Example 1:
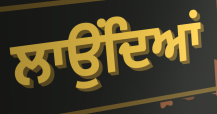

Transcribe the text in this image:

ਲਾਉਂਦਿਆਂ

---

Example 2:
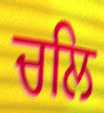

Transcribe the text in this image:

ਚਲਿ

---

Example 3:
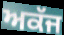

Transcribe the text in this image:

ਅਕੱਜ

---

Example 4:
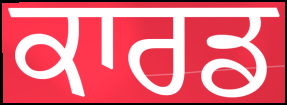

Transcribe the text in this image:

ਕਾਰਡ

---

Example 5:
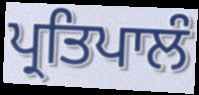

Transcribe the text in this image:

ਪ੍ਰਤਿਪਾਲੰ